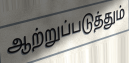
ஆற்றுப்படுத்தும்